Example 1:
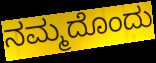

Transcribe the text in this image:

ನಮ್ಮದೊಂದು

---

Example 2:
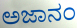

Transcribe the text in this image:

ಅಜಾನಂ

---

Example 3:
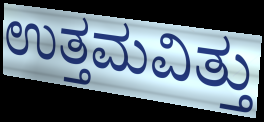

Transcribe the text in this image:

ಉತ್ತಮವಿತ್ತು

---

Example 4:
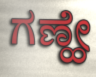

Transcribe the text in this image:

ಗಣ್ಹೇ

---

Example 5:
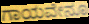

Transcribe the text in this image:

ಗಾಯವೇನೂ